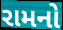
રામનો